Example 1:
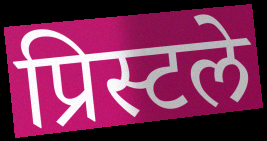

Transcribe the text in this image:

प्रिस्टले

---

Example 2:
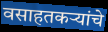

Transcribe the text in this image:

वसाहतकऱ्यांचे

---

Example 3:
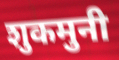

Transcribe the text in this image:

शुकमुनी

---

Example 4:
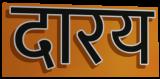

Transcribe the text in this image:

दारय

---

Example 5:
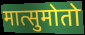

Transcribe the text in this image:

मात्सुमोतो